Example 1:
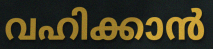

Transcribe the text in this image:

വഹിക്കാൻ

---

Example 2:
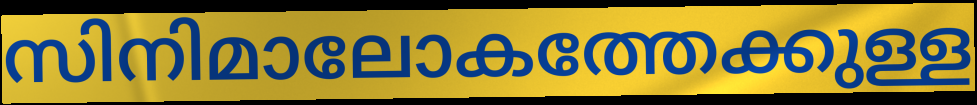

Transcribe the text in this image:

സിനിമാലോകത്തേക്കുള്ള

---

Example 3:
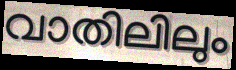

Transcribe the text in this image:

വാതിലിലും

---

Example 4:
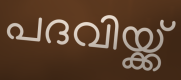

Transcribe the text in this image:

പദവിയ്ക്ക്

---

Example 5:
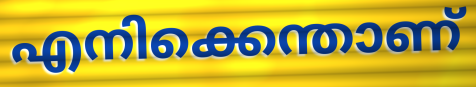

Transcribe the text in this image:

എനിക്കെന്താണ്